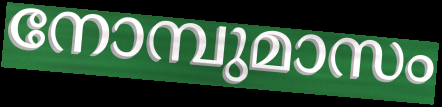
നോമ്പുമാസം